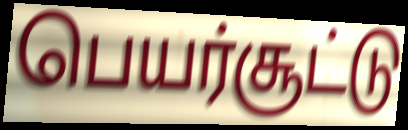
பெயர்சூட்டு